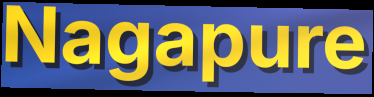
Nagapure